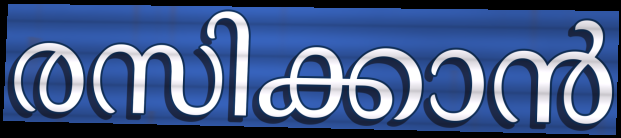
രസിക്കാൻ